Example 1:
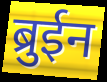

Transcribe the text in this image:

ब्रुईन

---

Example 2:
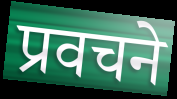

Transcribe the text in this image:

प्रवचने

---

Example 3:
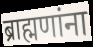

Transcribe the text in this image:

ब्राह्मणांना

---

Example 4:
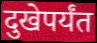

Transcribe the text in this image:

दुखेपर्यंत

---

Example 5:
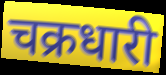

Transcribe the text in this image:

चक्रधारी